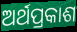
ଅର୍ଥପ୍ରକାଶ